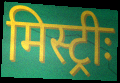
मिस्ट्रीः